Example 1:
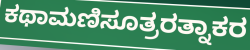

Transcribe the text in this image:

ಕಥಾಮಣಿಸೂತ್ರರತ್ನಾಕರ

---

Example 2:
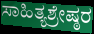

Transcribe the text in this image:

ಸಾಹಿತ್ಯಶ್ರೇಷ್ಠರ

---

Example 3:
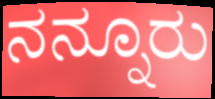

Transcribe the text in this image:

ನನ್ನೂರು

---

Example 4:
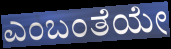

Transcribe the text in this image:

ಎಂಬಂತೆಯೇ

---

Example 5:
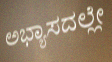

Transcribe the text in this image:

ಅಭ್ಯಾಸದಲ್ಲೇ